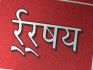
र्र्र्षय